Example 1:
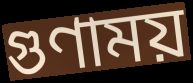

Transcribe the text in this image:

গুণাময়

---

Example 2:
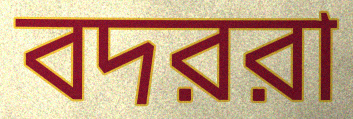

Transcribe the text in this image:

বদররা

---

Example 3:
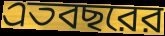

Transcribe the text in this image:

এতবছরের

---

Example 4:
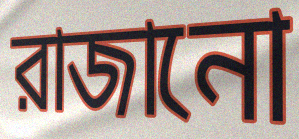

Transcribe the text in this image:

রাজানো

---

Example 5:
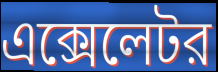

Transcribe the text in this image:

এক্সেলেটর